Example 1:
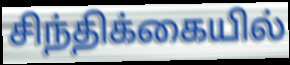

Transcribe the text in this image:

சிந்திக்கையில்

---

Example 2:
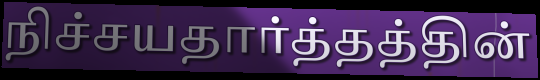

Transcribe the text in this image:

நிச்சயதார்த்தத்தின்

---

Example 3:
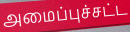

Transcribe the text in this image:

அமைப்புச்சட்ட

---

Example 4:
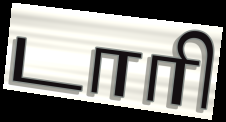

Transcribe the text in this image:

டாரி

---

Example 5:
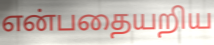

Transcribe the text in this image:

என்பதையறிய